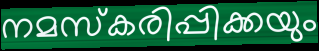
നമസ്കരിപ്പിക്കയും